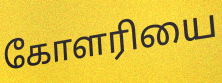
கோளரியை